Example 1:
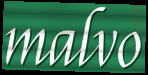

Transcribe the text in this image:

malvo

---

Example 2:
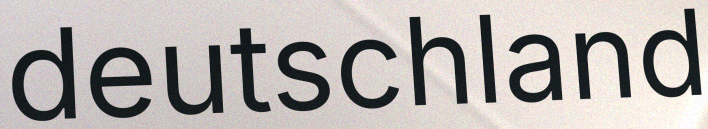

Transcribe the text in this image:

deutschland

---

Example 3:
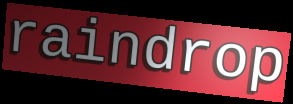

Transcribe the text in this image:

raindrop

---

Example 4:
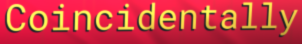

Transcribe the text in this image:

Coincidentally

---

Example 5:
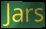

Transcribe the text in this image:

Jars